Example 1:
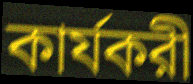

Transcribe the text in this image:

কার্যকরী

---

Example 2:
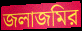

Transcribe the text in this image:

জলাজমির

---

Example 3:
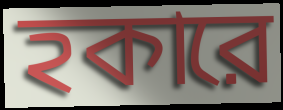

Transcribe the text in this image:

হকারে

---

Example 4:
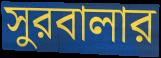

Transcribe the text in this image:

সুরবালার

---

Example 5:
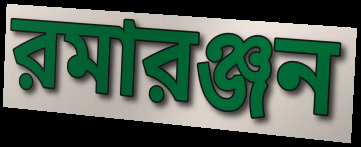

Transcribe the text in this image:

রমারঞ্জন